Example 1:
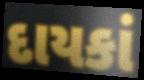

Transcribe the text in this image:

દાયકાં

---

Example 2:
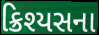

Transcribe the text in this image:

ક્રિશ્યસના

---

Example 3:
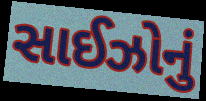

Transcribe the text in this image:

સાઈઝોનું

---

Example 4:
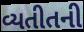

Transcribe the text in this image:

વ્યતીતની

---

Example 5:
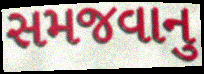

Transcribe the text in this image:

સમજવાનુ